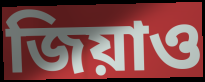
জিয়াও